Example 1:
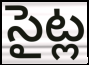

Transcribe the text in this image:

సైట్ల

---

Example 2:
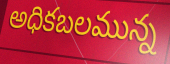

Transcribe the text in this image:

అధికబలమున్న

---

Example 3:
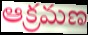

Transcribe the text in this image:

ఆక్రమణ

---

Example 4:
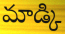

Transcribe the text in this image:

మాడ్కి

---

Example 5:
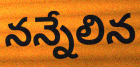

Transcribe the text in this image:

నన్నేలిన